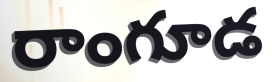
రాంగూడ